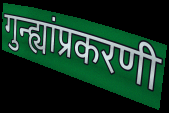
गुन्ह्यांप्रकरणी